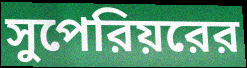
সুপেরিয়রের